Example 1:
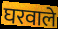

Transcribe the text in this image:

घरवाले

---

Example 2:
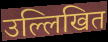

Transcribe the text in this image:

उल्लिखित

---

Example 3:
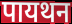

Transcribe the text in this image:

पायथन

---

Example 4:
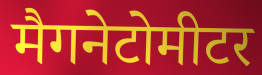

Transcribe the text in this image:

मैगनेटोमीटर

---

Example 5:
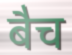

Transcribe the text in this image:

बैच